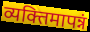
व्यक्तिमापन्नं